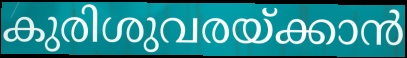
കുരിശുവരയ്ക്കാൻ